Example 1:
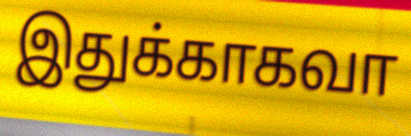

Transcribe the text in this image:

இதுக்காகவா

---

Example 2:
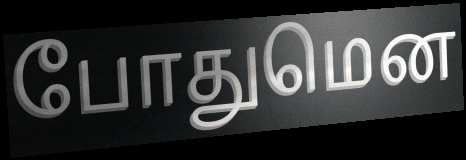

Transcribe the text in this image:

போதுமென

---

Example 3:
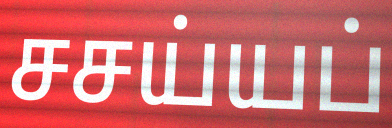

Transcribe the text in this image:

சசய்யப்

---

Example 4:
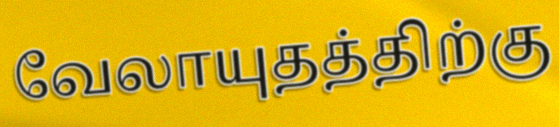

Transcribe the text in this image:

வேலாயுதத்திற்கு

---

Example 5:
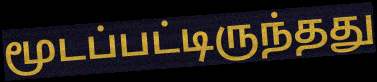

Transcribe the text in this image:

மூடப்பட்டிருந்தது